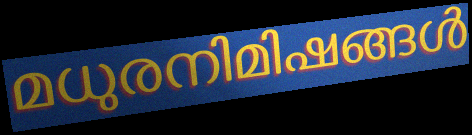
മധുരനിമിഷങ്ങൾ